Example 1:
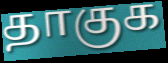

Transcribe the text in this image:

தாகுக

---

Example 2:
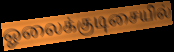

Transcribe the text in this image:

ஓலைக்குடிசையில்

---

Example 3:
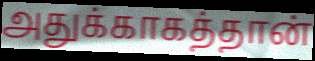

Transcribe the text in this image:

அதுக்காகத்தான்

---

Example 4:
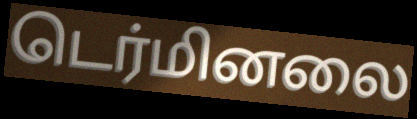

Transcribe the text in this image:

டெர்மினலை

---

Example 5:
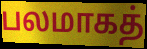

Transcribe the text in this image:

பலமாகத்